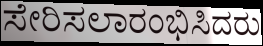
ಸೇರಿಸಲಾರಂಭಿಸಿದರು